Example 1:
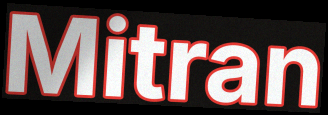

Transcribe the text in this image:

Mitran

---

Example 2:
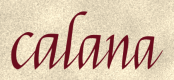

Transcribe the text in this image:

calana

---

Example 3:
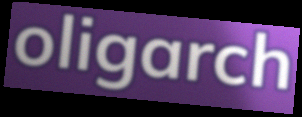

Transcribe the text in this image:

oligarch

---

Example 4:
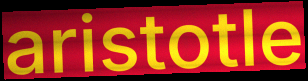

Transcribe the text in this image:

aristotle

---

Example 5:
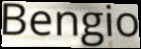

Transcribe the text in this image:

Bengio